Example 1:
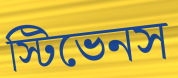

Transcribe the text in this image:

স্টিভেনস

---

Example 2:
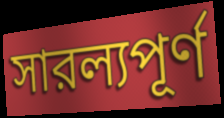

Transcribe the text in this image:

সারল্যপূর্ণ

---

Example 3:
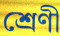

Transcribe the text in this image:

শ্রেণী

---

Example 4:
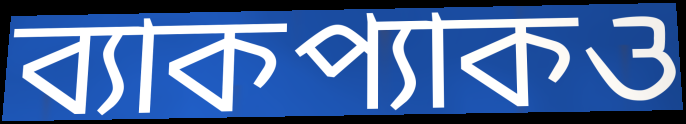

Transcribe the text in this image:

ব্যাকপ্যাকও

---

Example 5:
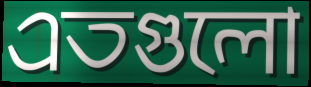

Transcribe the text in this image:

এতগুলো